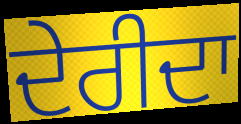
ਦੇਰੀਦਾ